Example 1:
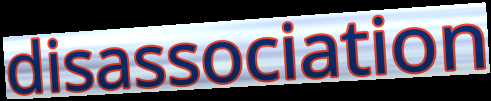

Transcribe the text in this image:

disassociation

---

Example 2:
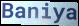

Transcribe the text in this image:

Baniya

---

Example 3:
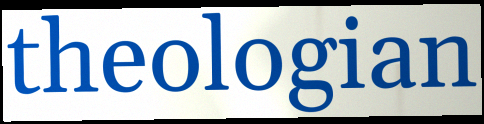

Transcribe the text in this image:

theologian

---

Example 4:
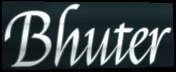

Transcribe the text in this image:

Bhuter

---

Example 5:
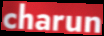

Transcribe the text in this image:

charun